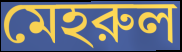
মেহরুল